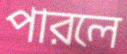
পারলে